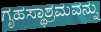
ಗೃಹಸ್ಥಾಶ್ರಮವನ್ನು